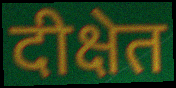
दीक्षेत